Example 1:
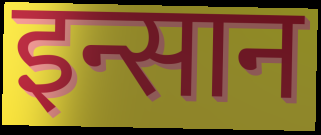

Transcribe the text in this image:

इन्सान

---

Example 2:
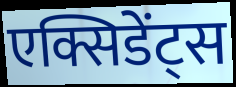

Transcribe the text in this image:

एक्सिडेंट्स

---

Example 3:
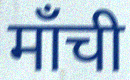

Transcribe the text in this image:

माँची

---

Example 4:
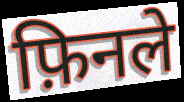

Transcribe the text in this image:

फ़िनले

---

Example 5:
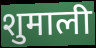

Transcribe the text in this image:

शुमाली